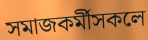
সমাজকৰ্মীসকলে